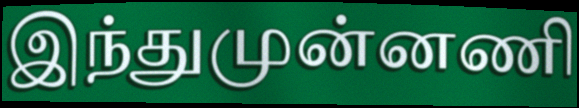
இந்துமுன்னணி